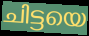
ചിട്ടയെ